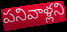
పనివాళ్లని